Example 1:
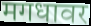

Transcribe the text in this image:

मगधावर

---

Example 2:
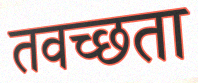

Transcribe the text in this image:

तवच्छता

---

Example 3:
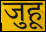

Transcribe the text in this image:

जुहू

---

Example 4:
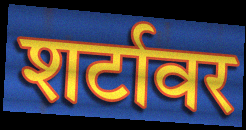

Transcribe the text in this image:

शर्टावर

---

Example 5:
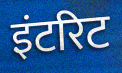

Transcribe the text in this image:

इंटरिट